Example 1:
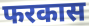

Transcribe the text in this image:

फरकास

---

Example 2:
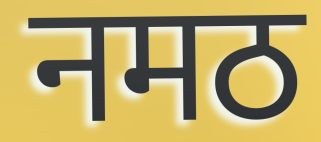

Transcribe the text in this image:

नमठ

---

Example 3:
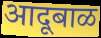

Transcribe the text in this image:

आदूबाळ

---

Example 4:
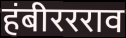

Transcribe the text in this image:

हंबीररराव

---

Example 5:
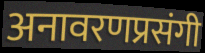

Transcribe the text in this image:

अनावरणप्रसंगी